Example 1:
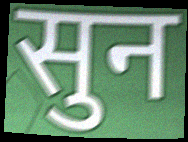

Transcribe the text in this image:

सुन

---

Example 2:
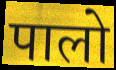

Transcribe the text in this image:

पालो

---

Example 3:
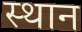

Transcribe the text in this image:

स्थान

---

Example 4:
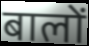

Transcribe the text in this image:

बालों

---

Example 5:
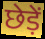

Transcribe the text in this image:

छेड़ें